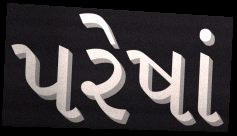
પરેષાં